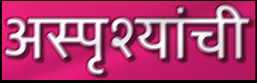
अस्पृश्यांची